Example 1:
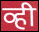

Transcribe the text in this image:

व्ही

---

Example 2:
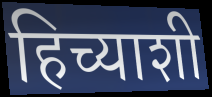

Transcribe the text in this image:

हिच्याशी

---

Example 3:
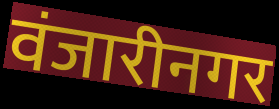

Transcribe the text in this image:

वंजारीनगर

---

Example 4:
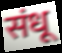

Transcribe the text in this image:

संधू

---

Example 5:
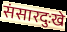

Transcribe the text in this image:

संसारदुःखे